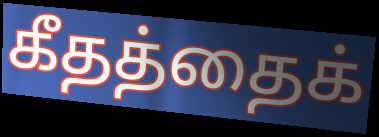
கீதத்தைக்